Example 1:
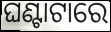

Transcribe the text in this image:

ଘଣ୍ଟାଟାରେ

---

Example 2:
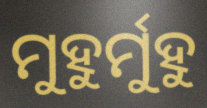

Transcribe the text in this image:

ମୁହୁର୍ମୁହୁ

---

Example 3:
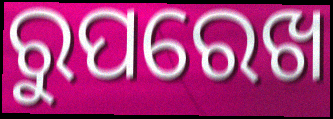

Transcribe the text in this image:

ରୁପରେଖ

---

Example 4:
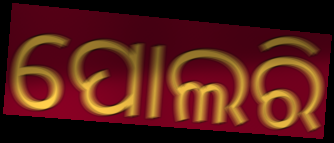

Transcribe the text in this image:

ପୋଲରି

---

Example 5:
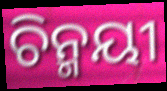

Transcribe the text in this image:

ଚିନ୍ମୟୀ